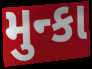
મુન્કા